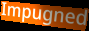
Impugned